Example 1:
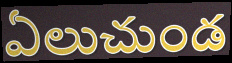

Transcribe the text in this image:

ఏలుచుండ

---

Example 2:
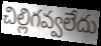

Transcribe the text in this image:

చిల్లిగవ్వలేదు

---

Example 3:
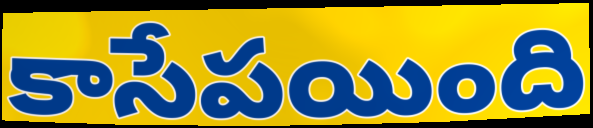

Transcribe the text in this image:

కాసేపయింది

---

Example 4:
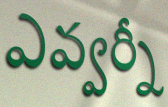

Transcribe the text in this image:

ఎవ్వర్నీ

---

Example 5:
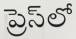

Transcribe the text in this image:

ప్రెస్‌లో